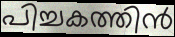
പിച്ചകത്തിൻ